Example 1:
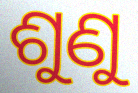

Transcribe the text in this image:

ଶୁଣୁ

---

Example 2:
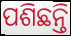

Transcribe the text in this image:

ପଶିଛନ୍ତି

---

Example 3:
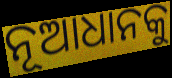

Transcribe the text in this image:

ନୂଆଧାନକୁ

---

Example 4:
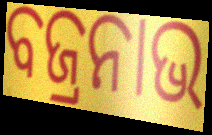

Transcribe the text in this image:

ବଜ୍ରନାଭ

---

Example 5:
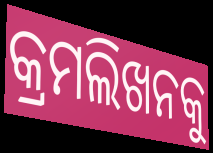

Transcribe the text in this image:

କ୍ରମଲିଖନକୁ